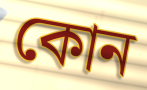
কোন